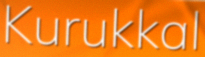
Kurukkal